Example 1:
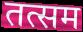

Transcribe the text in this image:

तत्सम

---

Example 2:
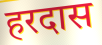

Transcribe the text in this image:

हरदास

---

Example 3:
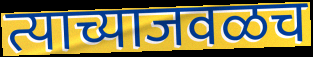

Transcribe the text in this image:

त्याच्याजवळच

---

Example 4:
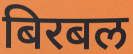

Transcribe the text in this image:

बिरबल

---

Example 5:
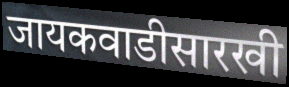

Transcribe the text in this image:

जायकवाडीसारखी